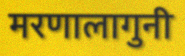
मरणालागुनी